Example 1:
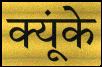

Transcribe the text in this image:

क्यूंके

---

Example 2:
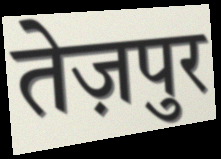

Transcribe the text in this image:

तेज़पुर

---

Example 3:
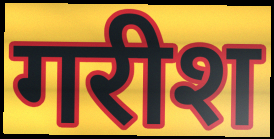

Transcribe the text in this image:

गरीश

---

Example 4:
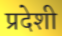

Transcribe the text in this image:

प्रदेशी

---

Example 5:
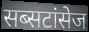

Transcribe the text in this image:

सब्सटांसेज